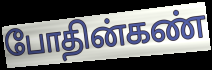
போதின்கண்